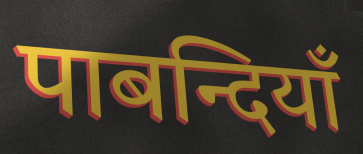
पाबन्दियाँ